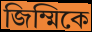
জিম্মিকে